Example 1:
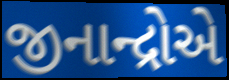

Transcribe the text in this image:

જીનાન્દ્રોએ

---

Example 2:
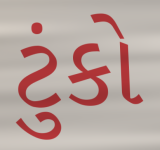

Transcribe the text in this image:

ટુંકો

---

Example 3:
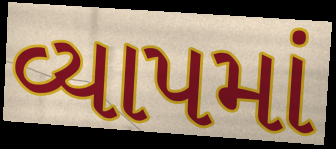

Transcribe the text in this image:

વ્યાપમાં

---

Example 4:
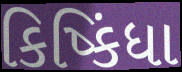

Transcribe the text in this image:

કિષ્કિંધા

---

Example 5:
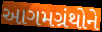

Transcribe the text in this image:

આગમગ્રંથોને